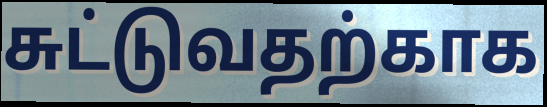
சுட்டுவதற்காக